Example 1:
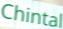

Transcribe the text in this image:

Chintal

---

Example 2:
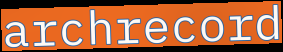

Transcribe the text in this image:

archrecord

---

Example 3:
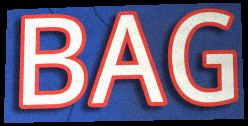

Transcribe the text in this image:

BAG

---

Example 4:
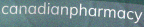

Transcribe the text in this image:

canadianpharmacy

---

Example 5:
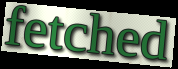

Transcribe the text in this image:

fetched